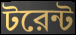
টরেন্ট